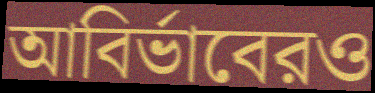
আবির্ভাবেরও